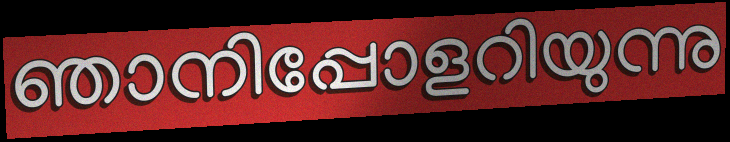
ഞാനിപ്പോളറിയുന്നു